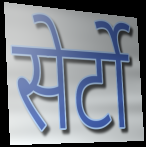
सेर्टो